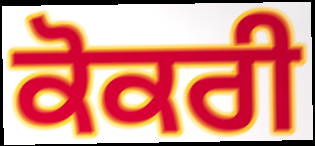
ਕੋਕਰੀ